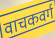
वाचकवर्ग